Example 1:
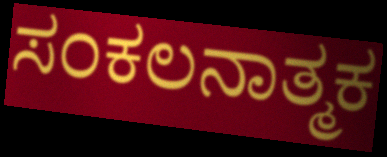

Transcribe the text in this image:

ಸಂಕಲನಾತ್ಮಕ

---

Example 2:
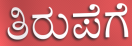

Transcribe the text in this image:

ತಿರುಪೆಗೆ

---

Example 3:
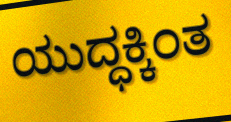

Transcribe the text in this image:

ಯುದ್ಧಕ್ಕಿಂತ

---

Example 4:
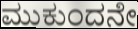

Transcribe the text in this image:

ಮುಕುಂದನೇ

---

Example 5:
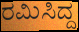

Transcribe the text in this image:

ರಮಿಸಿದ್ದ